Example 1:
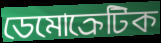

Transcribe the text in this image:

ডেমোক্রেটিক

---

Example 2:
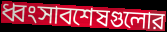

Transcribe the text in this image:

ধ্বংসাবশেষগুলোর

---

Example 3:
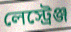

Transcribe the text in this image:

লেস্ট্রেঞ্জ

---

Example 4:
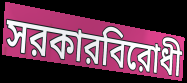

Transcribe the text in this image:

সরকারবিরোধী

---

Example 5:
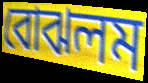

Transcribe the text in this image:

বোঝলম